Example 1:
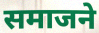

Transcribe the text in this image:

समाजने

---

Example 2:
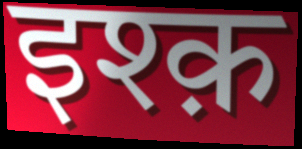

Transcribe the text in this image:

इश्क़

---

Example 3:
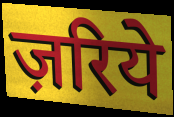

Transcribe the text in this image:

ज़रिये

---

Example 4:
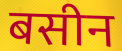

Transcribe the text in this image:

बसीन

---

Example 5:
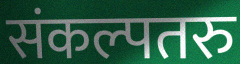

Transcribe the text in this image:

संकल्पतरु